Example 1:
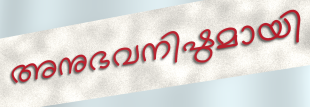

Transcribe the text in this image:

അനുഭവനിഷ്ഠമായി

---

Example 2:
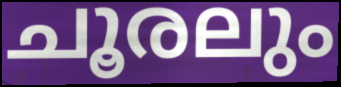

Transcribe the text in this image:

ചൂരലും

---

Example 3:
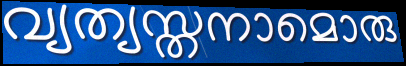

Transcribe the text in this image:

വ്യത്യസ്തനാമൊരു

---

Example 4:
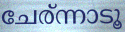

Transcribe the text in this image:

ചേര്ന്നാടൂ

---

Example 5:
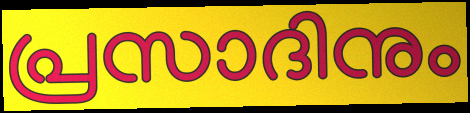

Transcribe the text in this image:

പ്രസാദിനും